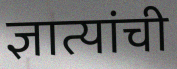
ज्ञात्यांची